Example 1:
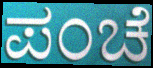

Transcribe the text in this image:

ಪಂಚೆ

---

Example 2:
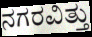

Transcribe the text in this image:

ನಗರವಿತ್ತು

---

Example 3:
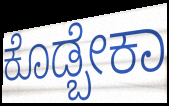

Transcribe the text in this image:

ಕೊಡ್ಬೇಕಾ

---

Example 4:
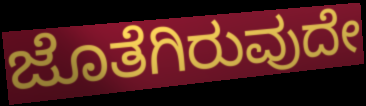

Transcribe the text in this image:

ಜೊತೆಗಿರುವುದೇ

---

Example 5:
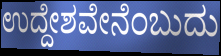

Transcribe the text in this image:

ಉದ್ದೇಶವೇನೆಂಬುದು